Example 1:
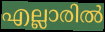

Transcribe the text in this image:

എല്ലാരിൽ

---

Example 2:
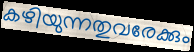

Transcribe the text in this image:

കഴിയുന്നതുവരേക്കും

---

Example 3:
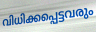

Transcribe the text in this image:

വിധിക്കപ്പെട്ടവരും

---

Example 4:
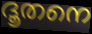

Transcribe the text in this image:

ദൂതനെ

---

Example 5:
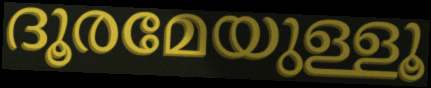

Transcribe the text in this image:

ദൂരമേയുള്ളൂ